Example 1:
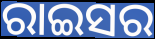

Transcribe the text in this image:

ରାଇସର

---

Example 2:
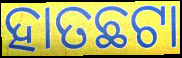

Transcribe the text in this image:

ହାତଛଟା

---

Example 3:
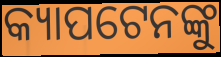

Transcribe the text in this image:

କ୍ୟାପଟେନଙ୍କୁ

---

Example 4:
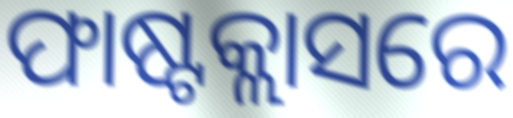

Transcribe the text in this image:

ଫାଷ୍ଟକ୍ଲାସରେ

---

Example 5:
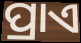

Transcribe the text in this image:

ପ୍ରାଏ